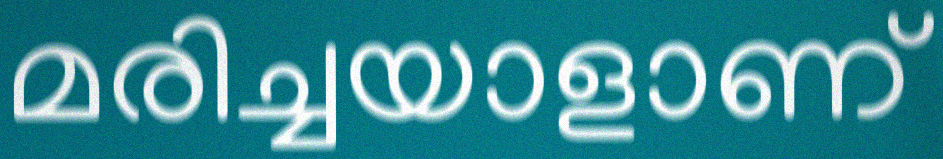
മരിച്ചയാളാണ്